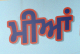
ਮੀਆਂ